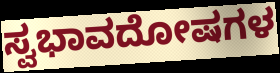
ಸ್ವಭಾವದೋಷಗಳ